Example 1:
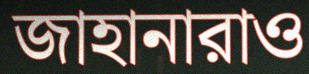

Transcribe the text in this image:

জাহানারাও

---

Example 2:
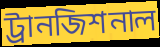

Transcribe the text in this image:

ট্রানজিশনাল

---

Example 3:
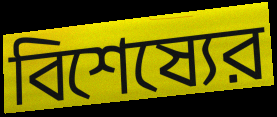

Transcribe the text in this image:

বিশেষ্যের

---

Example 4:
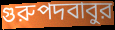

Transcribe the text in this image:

গুরুপদবাবুর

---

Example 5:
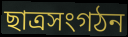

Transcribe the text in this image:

ছাত্রসংগঠন